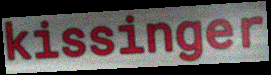
kissinger